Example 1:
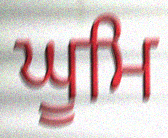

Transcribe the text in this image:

ਘੂਮਿ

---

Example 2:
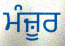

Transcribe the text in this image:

ਮੰਜ਼ੂਰ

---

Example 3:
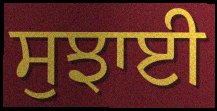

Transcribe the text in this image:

ਸੁਝਾਈ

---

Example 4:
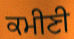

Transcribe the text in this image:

ਕਮੀਣੀ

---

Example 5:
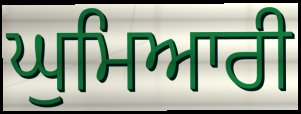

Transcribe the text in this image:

ਘੁਮਿਆਰੀ